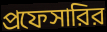
প্রফেসারির